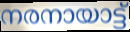
നരനായാട്ട്